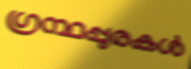
ഗ്രന്ഥപ്പുരകൾ